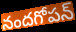
నందగోపన్